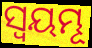
ସ୍ଵୟମ୍ଭୂ